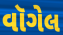
વૉગેલ